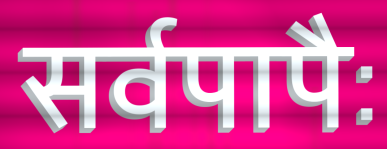
सर्वपापैः